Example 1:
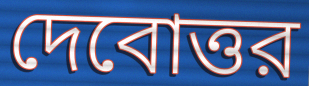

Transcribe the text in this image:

দেবোত্তর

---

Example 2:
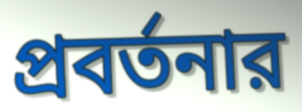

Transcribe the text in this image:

প্রবর্তনার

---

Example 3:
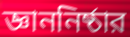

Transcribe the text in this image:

জ্ঞাননিষ্ঠার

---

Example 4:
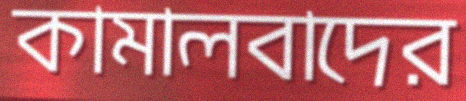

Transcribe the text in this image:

কামালবাদের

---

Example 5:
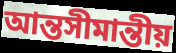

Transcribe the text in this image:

আন্তসীমান্তীয়